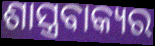
ଶାସ୍ତ୍ରବାକ୍ୟର